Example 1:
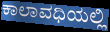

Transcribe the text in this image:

ಕಾಲಾವಧಿಯಲ್ಲಿ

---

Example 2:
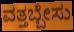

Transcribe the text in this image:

ವತ್ತಬ್ಬೇಸು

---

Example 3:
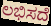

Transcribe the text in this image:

ಲಭಿಸದೆ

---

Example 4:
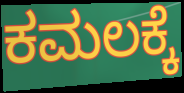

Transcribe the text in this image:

ಕಮಲಕ್ಕೆ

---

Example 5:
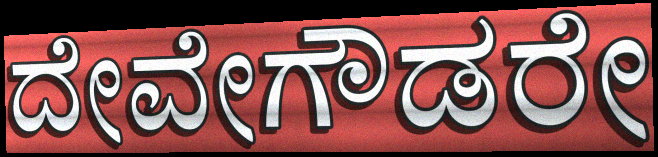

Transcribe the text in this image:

ದೇವೇಗೌಡರೇ